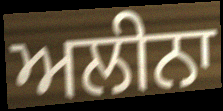
ਅਲੀਨਾ